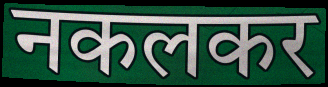
नकलकर